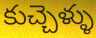
కుచ్చెళ్ళు